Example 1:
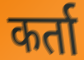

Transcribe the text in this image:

कर्ता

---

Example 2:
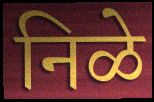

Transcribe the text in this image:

निळे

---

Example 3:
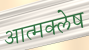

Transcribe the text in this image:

आत्मक्लेष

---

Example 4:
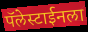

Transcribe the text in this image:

पॅलेस्टाईनला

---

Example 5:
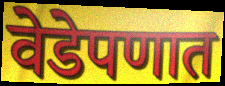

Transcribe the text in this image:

वेडेपणात